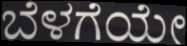
ಬೆಳಗೆಯೇ